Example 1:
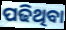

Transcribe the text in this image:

ପଢିଥିବା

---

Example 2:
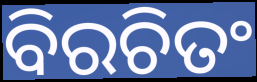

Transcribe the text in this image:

ବିରଚିତଂ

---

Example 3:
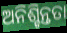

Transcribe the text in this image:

ଅନିଶ୍ଚିନ୍ତତା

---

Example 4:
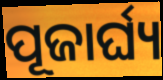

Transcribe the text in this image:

ପୂଜାର୍ଘ୍ୟ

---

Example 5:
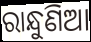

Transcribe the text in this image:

ରାନ୍ଧୁଣିଆ